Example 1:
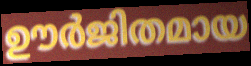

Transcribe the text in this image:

ഊർജിതമായ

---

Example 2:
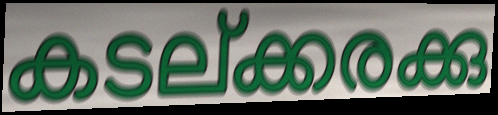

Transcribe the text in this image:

കടല്ക്കരക്കു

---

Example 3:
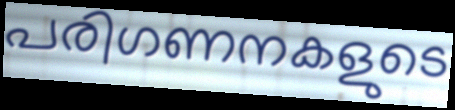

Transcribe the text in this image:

പരിഗണനകളുടെ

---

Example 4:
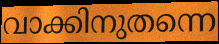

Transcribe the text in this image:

വാക്കിനുതന്നെ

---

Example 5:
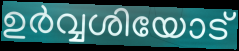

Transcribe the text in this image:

ഉർവ്വശിയോട്